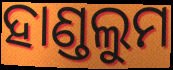
ହାଣ୍ଡଲୁମ